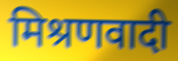
मिश्रणवादी